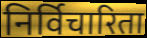
निर्विचारिता